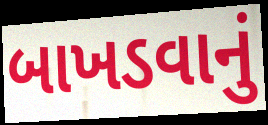
બાખડવાનું